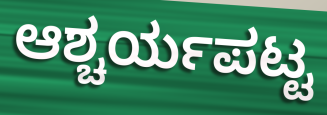
ಆಶ್ಚರ್ಯಪಟ್ಟ